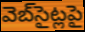
వెబ్‌సైట్లపై